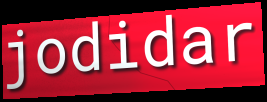
jodidar